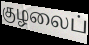
குழலைப்